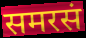
समरसं